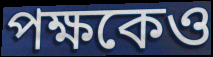
পক্ষকেও